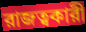
রাজত্বকারী